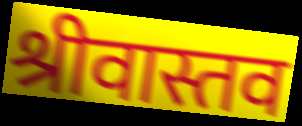
श्रीवास्तव